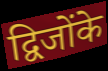
द्विजोंके